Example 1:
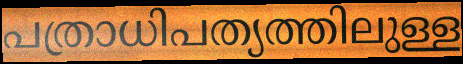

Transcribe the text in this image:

പത്രാധിപത്യത്തിലുള്ള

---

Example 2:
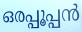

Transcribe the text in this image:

ഒരപ്പൂപ്പൻ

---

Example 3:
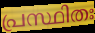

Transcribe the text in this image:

പ്രസ്ഥിതഃ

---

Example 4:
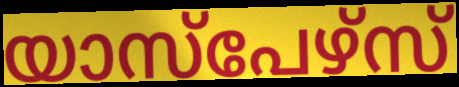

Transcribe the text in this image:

യാസ്പേഴ്സ്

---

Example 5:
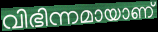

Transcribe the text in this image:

വിഭിന്നമായാണ്